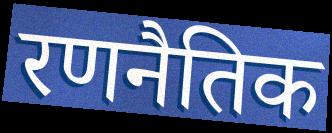
रणनैतिक